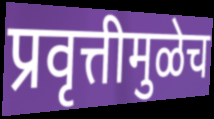
प्रवृत्तीमुळेच